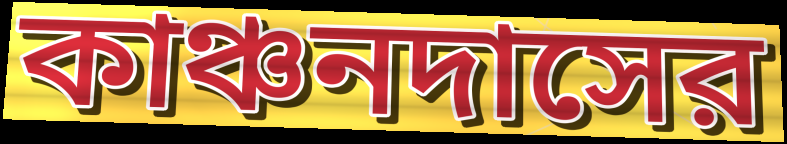
কাঞ্চনদাসের